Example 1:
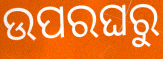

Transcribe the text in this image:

ଉପରଘରୁ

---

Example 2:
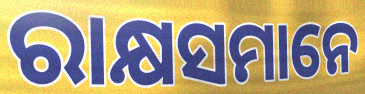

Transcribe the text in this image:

ରାକ୍ଷସମାନେ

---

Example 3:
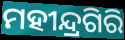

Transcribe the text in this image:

ମହୀନ୍ଦ୍ରଗିରି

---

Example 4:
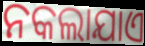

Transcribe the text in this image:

ନକଲାଯାଏ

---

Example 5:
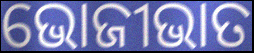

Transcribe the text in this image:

ଭୋଜୀଭାତ